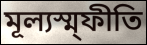
মূল্যস্ম্ফীতি